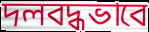
দলবদ্ধভাবে